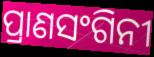
ପ୍ରାଣସଂଗିନୀ